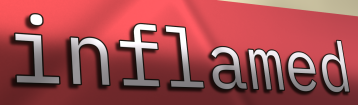
inflamed